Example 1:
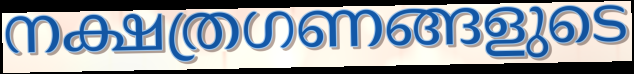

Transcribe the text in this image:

നക്ഷത്രഗണങ്ങളുടെ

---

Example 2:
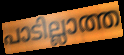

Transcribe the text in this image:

പാടില്ലാത്ത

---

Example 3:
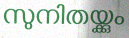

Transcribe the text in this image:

സുനിതയ്ക്കും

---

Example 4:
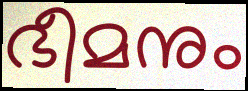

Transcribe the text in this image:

ഭീമനും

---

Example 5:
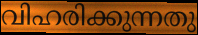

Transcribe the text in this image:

വിഹരിക്കുന്നതു